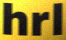
hrl